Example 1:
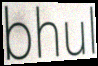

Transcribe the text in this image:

bhul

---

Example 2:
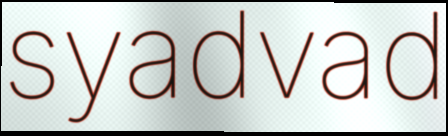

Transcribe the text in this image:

syadvad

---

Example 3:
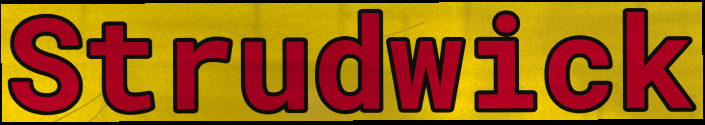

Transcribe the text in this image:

Strudwick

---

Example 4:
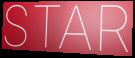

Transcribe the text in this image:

STAR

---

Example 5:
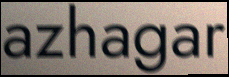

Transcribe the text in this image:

azhagar